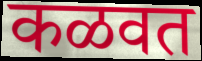
कळवत